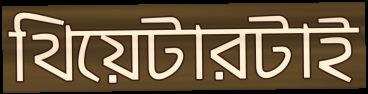
থিয়েটারটাই